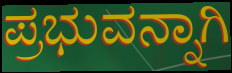
ಪ್ರಭುವನ್ನಾಗಿ